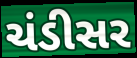
ચંડીસર